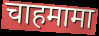
चाहमामा